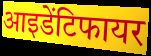
आइडेंटिफायर